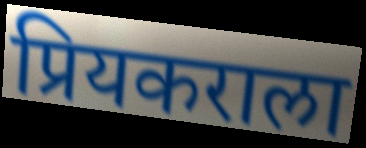
प्रियकराला